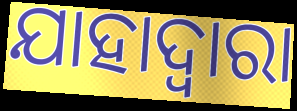
ଯାହାଦ୍ୱାରା